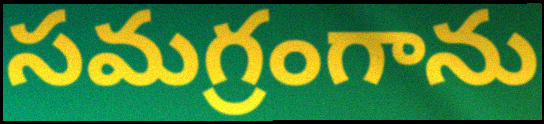
సమగ్రంగాను